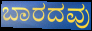
ಬಾರದವು